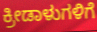
ಕ್ರೀಡಾಳುಗಳಿಗೆ